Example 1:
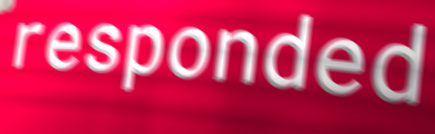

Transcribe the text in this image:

responded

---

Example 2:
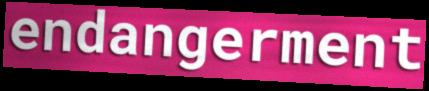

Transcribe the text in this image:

endangerment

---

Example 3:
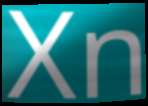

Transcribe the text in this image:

Xn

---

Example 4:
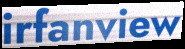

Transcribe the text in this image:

irfanview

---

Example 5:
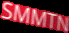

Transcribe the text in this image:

SMMTN